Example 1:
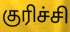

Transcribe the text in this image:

குரிச்சி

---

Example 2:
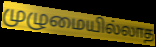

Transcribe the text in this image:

முழுமையில்லாத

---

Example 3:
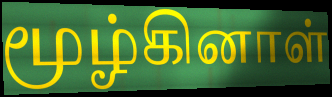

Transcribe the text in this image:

மூழ்கினாள்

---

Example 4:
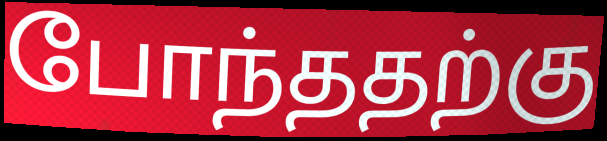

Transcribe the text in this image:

போந்ததற்கு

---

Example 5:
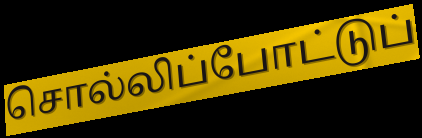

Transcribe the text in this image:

சொல்லிப்போட்டுப்